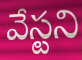
వేస్టని